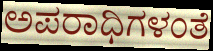
ಅಪರಾಧಿಗಳಂತೆ